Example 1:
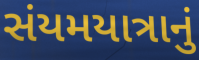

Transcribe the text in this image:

સંયમયાત્રાનું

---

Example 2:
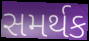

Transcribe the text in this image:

સમર્થક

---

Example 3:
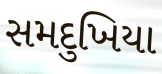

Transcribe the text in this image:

સમદુખિયા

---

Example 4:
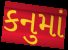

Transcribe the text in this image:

કનુમાં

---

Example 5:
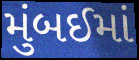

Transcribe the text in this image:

મુંબઈમાં